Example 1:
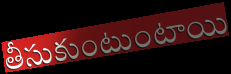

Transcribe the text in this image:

తీసుకుంటుంటాయి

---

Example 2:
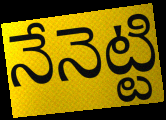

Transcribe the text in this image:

నేనెట్టి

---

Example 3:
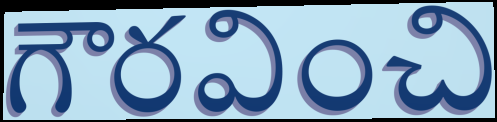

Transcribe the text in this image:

గౌరవించి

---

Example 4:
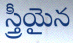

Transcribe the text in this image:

స్త్రీయైన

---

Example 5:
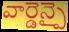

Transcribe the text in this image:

వార్డెన్పై